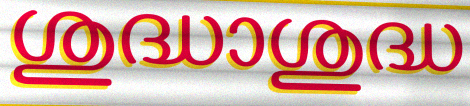
ശുദ്ധാശുദ്ധ